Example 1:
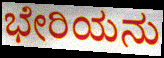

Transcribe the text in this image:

ಭೇರಿಯನು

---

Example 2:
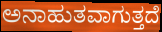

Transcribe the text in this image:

ಅನಾಹುತವಾಗುತ್ತದೆ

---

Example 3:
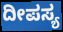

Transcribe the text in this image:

ದೀಪಸ್ಯ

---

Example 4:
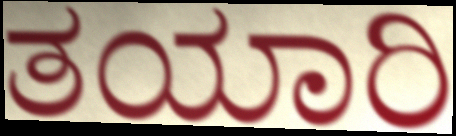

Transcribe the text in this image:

ತಯಾರಿ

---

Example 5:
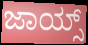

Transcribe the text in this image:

ಜಾಯ್ಸ್